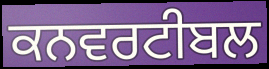
ਕਨਵਰਟੀਬਲ